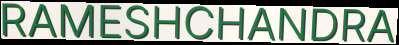
RAMESHCHANDRA